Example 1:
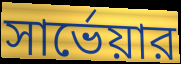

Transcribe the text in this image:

সার্ভেয়ার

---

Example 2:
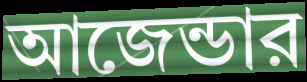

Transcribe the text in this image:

আজেন্ডার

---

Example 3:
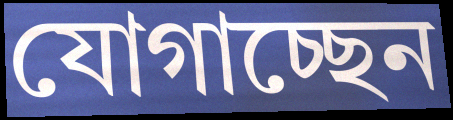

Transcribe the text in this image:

যোগাচ্ছেন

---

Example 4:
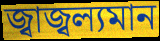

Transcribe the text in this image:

জ্বাজ্বল্যমান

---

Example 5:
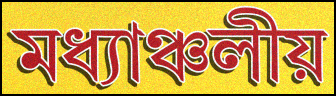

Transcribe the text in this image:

মধ্যাঞ্চলীয়